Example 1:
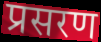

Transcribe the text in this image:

प्रसरण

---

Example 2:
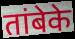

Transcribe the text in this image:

तांबेके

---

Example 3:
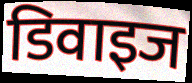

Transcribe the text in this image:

डिवाइज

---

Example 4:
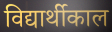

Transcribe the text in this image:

विद्यार्थीकाल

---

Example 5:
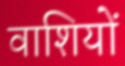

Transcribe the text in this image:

वाशियों